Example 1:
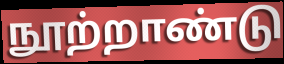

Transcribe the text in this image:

நூற்றாண்டு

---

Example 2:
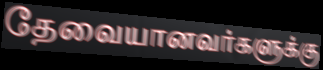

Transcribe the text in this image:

தேவையானவர்களுக்கு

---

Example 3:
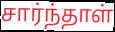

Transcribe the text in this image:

சார்ந்தாள்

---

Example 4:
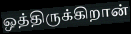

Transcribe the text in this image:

ஒத்திருக்கிறான்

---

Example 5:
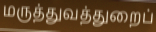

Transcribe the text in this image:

மருத்துவத்துறைப்